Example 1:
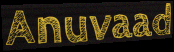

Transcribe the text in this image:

Anuvaad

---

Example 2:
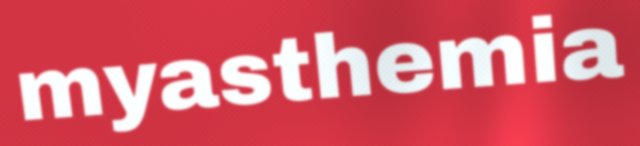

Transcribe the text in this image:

myasthemia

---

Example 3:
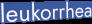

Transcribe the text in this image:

leukorrhea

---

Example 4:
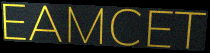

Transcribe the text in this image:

EAMCET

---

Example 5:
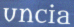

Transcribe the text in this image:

uncia